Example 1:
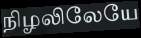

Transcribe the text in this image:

நிழலிலேயே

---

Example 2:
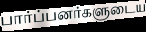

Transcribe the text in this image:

பார்ப்பனர்களுடைய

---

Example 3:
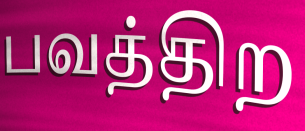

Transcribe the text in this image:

பவத்திற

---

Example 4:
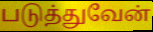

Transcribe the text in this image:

படுத்துவேன்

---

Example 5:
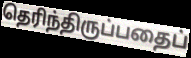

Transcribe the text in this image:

தெரிந்திருப்பதைப்